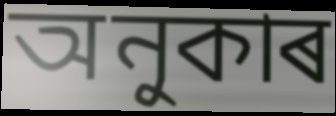
অনুকাৰ